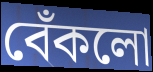
বেঁকলো